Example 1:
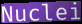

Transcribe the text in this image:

Nuclei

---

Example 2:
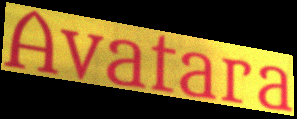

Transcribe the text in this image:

Avatara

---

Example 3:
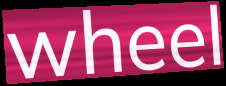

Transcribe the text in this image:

wheel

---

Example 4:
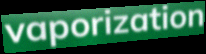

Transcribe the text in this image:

vaporization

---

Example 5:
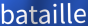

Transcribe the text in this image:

bataille